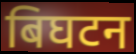
बिघटन